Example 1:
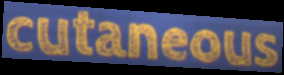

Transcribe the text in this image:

cutaneous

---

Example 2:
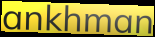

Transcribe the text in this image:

ankhman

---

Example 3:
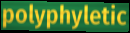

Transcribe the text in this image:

polyphyletic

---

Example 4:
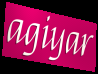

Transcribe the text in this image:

agiyar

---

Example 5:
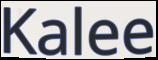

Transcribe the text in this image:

Kalee